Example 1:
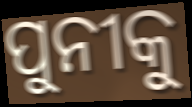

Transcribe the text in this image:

ପୁନୀକୁ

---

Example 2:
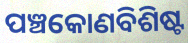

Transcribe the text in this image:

ପଞ୍ଚକୋଣବିଶିଷ୍ଟ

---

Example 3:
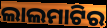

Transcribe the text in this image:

ଲାଲମାଟିର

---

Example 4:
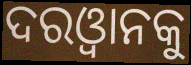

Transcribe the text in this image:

ଦରଓ୍ୱାନକୁ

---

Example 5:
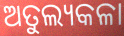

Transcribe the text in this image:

ଅତୁଲ୍ୟକଳା